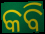
କବି